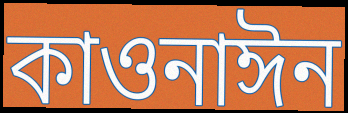
কাওনাঈন